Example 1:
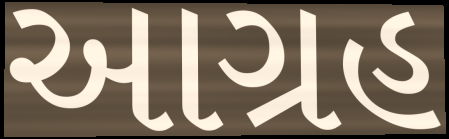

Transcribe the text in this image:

આગ્રહ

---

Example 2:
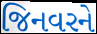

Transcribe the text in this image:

જિનવરને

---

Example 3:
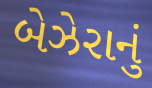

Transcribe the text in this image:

બેઝેરાનું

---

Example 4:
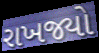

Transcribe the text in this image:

રાખજ્યો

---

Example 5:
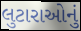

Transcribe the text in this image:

લુટારાઓનું